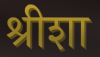
श्रीशा